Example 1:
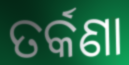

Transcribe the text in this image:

ତର୍କଣା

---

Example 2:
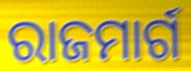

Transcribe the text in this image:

ରାଜମାର୍ଗ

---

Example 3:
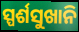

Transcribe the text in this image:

ସ୍ପର୍ଶସୁଖାନି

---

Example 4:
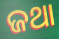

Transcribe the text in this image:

ଜଥା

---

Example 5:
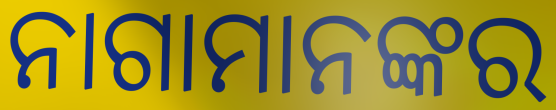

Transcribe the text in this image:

ନାଗାମାନଙ୍କର